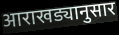
आराखड्यानुसार